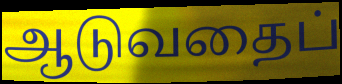
ஆடுவதைப்